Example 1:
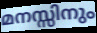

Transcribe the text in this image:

മനസ്സിനും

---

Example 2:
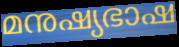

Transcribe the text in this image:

മനുഷ്യഭാഷ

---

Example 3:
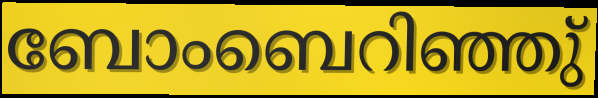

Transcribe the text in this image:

ബോംബെറിഞ്ഞു്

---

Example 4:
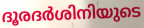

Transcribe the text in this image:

ദൂരദർശിനിയുടെ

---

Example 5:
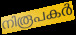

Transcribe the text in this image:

നിരൂപകർ